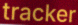
tracker